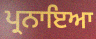
ਪ੍ਰਨਾਇਆ